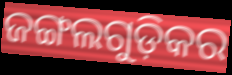
ଜଙ୍ଗଲଗୁଡ଼ିକର